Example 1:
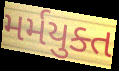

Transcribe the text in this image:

મર્મયુક્ત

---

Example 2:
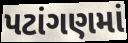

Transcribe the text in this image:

પટાંગણમાં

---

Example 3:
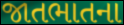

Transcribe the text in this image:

જાતભાતના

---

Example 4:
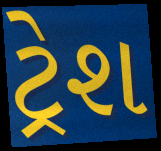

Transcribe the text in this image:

ટ્રેશ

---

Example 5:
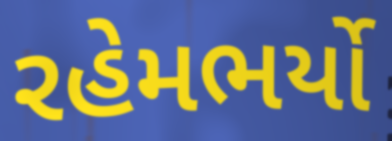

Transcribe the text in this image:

રહેમભર્યો